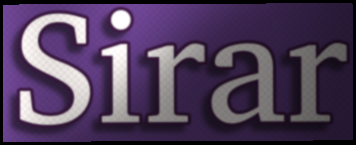
Sirar